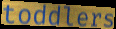
toddlers